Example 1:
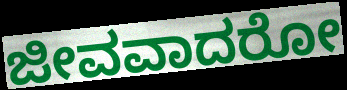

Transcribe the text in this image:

ಜೀವವಾದರೋ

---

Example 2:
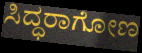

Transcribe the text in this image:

ಸಿದ್ಧರಾಗೋಣ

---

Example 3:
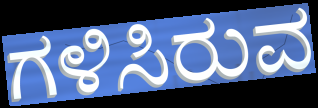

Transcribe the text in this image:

ಗಳಿಸಿರುವ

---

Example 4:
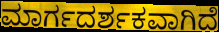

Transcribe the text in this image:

ಮಾರ್ಗದರ್ಶಕವಾಗಿದೆ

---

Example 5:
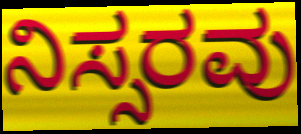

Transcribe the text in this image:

ನಿಸ್ಸರವು